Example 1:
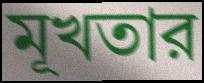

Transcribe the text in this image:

মূখতার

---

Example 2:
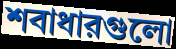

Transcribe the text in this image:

শবাধারগুলো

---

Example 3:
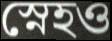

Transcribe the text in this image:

স্নেহও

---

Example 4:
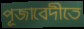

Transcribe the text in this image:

পূজাবেদীতে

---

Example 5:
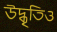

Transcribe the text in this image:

উদ্ধৃতিও